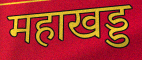
महाखड्ड